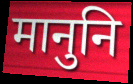
मानुनि